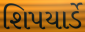
શિપયાર્ડે